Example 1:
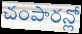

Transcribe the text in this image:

చంపారన్లో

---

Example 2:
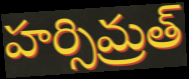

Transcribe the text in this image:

హర్సిమ్రత్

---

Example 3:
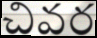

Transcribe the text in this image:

చివర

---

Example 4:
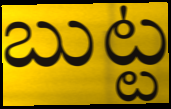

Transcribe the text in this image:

బుట్ట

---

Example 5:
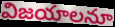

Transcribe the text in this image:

విజయాలనూ